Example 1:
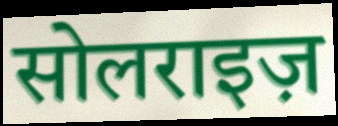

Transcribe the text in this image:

सोलराइज़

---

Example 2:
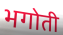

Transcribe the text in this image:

भगोती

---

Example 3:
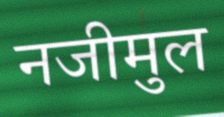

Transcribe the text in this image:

नजीमुल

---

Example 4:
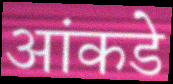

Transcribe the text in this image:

आंकडे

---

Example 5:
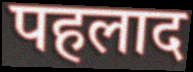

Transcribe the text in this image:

पहलाद